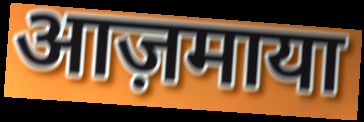
आज़माया